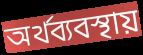
অর্থব্যবস্থায়